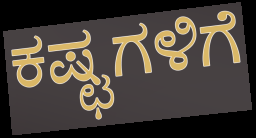
ಕಷ್ಟಗಳಿಗೆ